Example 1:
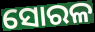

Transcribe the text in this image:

ସୋରଳ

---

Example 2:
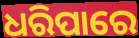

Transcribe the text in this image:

ଧରିପାରେ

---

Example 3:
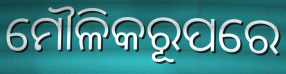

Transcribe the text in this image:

ମୌଳିକରୂପରେ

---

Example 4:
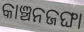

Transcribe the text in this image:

କାଞ୍ଚନଜଙ୍ଘା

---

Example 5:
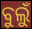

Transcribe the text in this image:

ବୁଲୁଁ